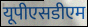
यूपीएसडीएम